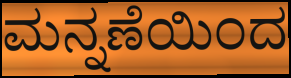
ಮನ್ನಣೆಯಿಂದ